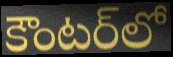
కౌంటర్‌లో